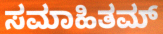
ಸಮಾಹಿತಮ್